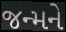
જન્મને